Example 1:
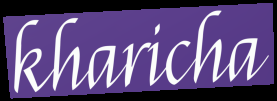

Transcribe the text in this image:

kharicha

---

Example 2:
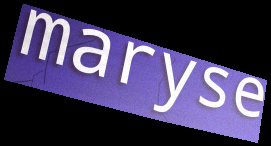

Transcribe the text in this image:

maryse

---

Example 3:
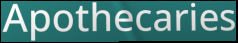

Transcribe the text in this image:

Apothecaries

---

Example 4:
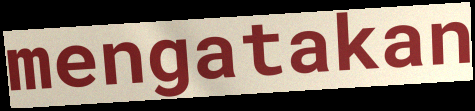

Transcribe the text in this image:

mengatakan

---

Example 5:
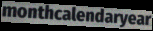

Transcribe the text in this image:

monthcalendaryear